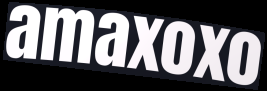
amaxoxo